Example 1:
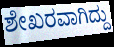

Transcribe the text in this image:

ಶೇಖರವಾಗಿದ್ದು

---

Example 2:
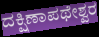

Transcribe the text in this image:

ದಕ್ಷಿಣಾಪಥೇಶ್ವರ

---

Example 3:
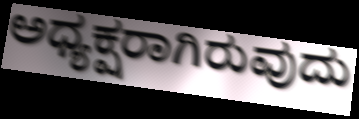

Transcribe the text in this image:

ಅಧ್ಯಕ್ಷರಾಗಿರುವುದು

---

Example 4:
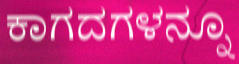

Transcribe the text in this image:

ಕಾಗದಗಳನ್ನೂ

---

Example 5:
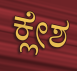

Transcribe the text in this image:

ಕ್ಲೇಶ